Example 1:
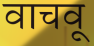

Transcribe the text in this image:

वाचवू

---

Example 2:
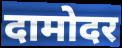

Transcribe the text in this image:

दामोदर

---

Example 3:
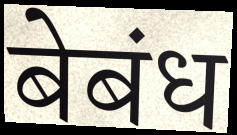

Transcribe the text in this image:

बेबंध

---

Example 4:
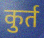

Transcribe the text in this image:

कुर्त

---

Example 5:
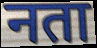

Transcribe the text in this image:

नता